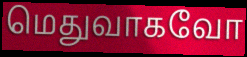
மெதுவாகவோ